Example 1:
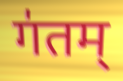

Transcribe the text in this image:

ग॑तम्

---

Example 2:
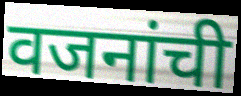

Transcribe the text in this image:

वजनांची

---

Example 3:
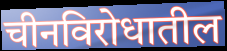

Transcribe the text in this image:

चीनविरोधातील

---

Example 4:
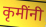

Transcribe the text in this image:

कृमींनी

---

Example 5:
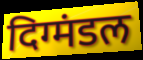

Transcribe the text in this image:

दिग्मंडल